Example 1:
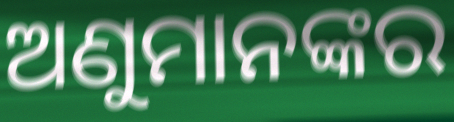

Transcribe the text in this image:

ଅଣୁମାନଙ୍କର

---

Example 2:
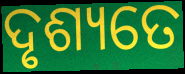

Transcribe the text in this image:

ଦୃଶ୍ୟତେ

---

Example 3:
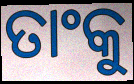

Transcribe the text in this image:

ତାଂକୁ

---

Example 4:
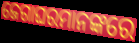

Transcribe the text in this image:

ଜେଗାଘରମାନଙ୍କରେ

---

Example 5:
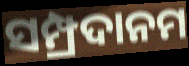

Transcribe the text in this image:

ସମ୍ପ୍ରଦାନମ